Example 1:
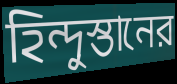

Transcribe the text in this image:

হিন্দুস্তানের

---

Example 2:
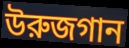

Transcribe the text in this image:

উরুজগান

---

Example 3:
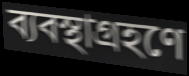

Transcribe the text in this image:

ব্যবস্থাগ্রহণে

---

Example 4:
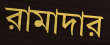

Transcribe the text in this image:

রামাদার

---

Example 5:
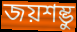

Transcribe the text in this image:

জয়শম্ভু